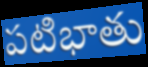
పటిభాతు